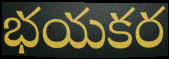
భయకర